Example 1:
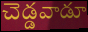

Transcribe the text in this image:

చెడ్డవాడూ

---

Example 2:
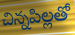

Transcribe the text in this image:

చిన్నపిల్లతో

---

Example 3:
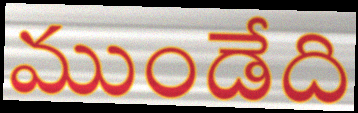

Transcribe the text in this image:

ముండేది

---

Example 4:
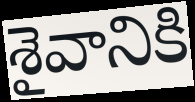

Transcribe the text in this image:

శైవానికి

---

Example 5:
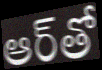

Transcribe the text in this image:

ఆర్‌తో